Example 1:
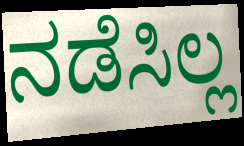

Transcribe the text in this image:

ನಡೆಸಿಲ್ಲ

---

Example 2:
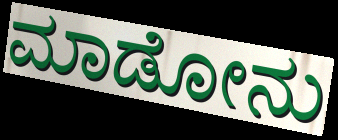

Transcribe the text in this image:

ಮಾಡೋನು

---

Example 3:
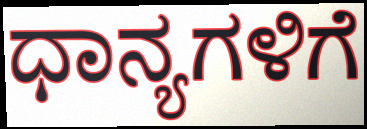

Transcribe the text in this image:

ಧಾನ್ಯಗಳಿಗೆ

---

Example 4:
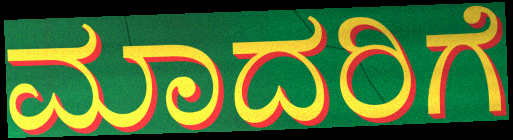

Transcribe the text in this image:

ಮಾದರಿಗೆ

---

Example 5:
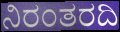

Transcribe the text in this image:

ನಿರಂತರದಿ